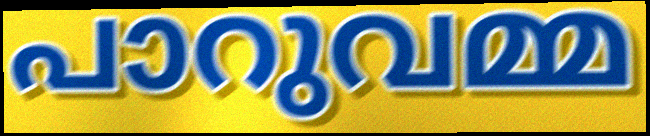
പാറുവമ്മ